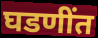
घडणींत